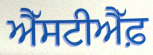
ਐੱਸਟੀਐੱਫ਼